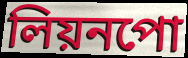
লিয়নপো